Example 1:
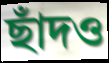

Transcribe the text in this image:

ছাঁদও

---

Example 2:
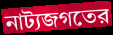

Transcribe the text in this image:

নাট্যজগতের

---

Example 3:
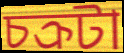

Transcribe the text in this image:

চক্রটা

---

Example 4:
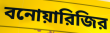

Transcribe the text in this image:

বনোয়ারিজির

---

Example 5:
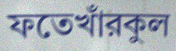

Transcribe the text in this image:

ফতেখাঁরকুল